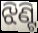
ଝିଣ୍ଟି